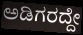
ಅಡಿಗರದ್ದೇ